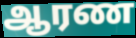
ஆரண